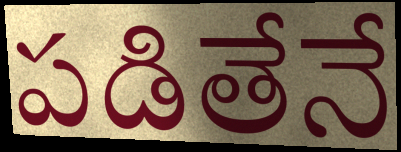
పడితేనే